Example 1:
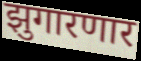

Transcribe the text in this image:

झुगारणार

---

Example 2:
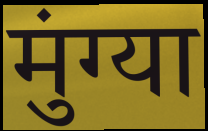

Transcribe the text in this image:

मुंग्या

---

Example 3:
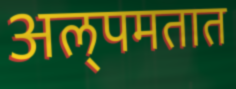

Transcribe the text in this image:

अल्पमतात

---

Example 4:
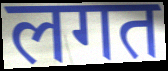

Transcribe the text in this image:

लगत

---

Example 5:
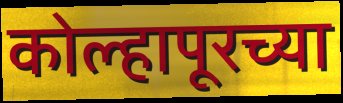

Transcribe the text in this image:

कोल्हापूरच्या